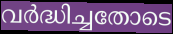
വർദ്ധിച്ചതോടെ